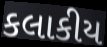
કલાકીય